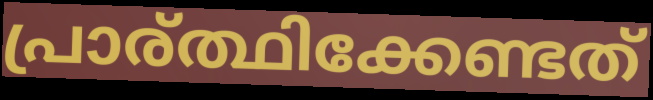
പ്രാര്ത്ഥിക്കേണ്ടത്